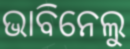
ଭାବିନେଲୁ